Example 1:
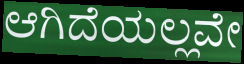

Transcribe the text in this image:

ಆಗಿದೆಯಲ್ಲವೇ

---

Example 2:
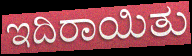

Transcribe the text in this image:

ಇದಿರಾಯಿತು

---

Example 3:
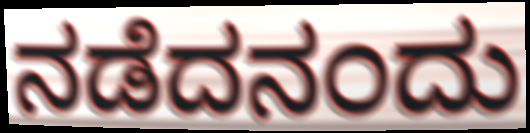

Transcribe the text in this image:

ನಡೆದನಂದು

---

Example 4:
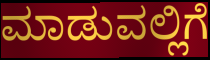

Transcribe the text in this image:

ಮಾಡುವಲ್ಲಿಗೆ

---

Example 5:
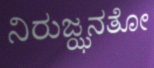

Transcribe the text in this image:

ನಿರುಜ್ಝನತೋ